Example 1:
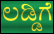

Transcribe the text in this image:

ಲಡ್ಡಿಗೆ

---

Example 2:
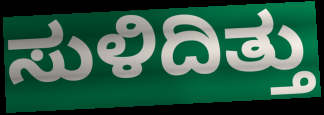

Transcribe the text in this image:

ಸುಳಿದಿತ್ತು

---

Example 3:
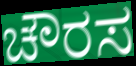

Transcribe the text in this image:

ಚೌರಸ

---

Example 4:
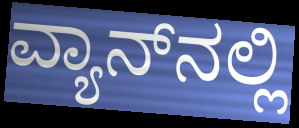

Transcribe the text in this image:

ವ್ಯಾನ್‌ನಲ್ಲಿ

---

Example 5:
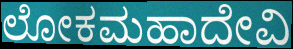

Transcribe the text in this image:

ಲೋಕಮಹಾದೇವಿ